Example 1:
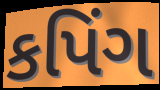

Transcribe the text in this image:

કપિંગ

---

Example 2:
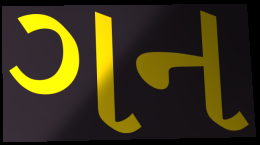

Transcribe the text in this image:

ગન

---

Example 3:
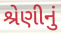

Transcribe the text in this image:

શ્રેણીનું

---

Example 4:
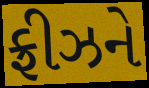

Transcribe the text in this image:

ફ્રીઝને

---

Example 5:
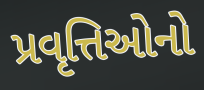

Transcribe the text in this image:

પ્રવૃત્તિઓનો